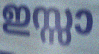
ഇസ്സാ